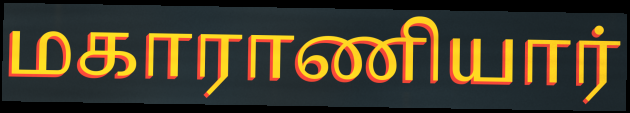
மகாராணியார்